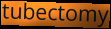
tubectomy